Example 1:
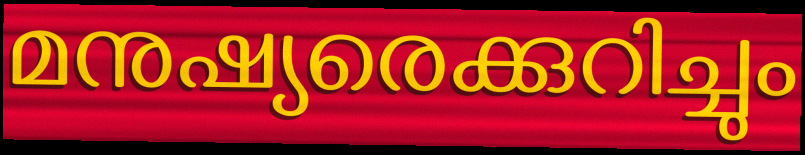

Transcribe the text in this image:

മനുഷ്യരെക്കുറിച്ചും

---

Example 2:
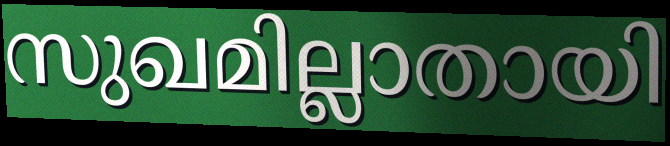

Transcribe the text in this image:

സുഖമില്ലാതായി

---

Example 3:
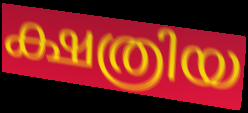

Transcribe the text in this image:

ക്ഷത്രിയ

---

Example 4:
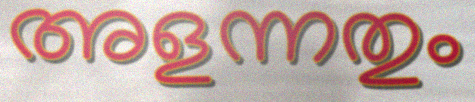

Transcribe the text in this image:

അളന്നതും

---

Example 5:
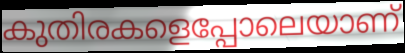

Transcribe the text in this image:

കുതിരകളെപ്പോലെയാണ്